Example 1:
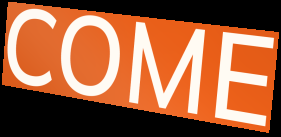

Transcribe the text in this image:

COME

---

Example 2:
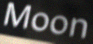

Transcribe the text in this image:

Moon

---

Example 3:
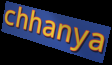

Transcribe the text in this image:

chhanya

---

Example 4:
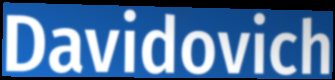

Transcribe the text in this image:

Davidovich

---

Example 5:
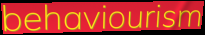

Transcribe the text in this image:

behaviourism